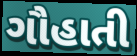
ગૌહાતી